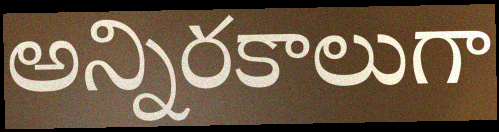
అన్నిరకాలుగా